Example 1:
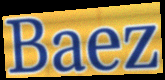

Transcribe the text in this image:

Baez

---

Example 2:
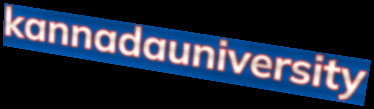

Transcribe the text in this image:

kannadauniversity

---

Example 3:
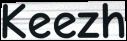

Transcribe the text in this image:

Keezh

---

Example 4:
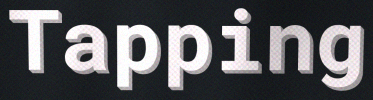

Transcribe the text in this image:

Tapping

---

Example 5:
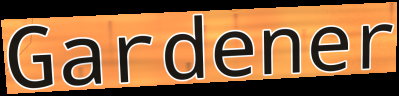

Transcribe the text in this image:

Gardener